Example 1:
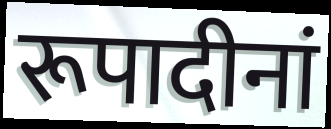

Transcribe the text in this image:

रूपादीनां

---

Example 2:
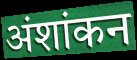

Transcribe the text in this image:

अंशांकन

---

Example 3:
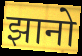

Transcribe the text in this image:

झानो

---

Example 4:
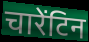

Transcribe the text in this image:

चारेंटिन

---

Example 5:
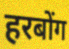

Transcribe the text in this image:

हरबोंग